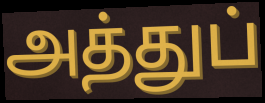
அத்துப்